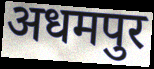
अधमपुर